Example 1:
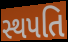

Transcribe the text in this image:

સ્થપતિ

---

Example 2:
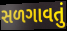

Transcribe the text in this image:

સળગાવતું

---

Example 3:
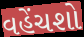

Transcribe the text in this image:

વહેંચશો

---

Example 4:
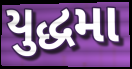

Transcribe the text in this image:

યુદ્ધમા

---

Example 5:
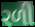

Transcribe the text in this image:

રળી